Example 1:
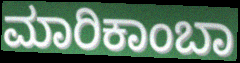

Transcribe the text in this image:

ಮಾರಿಕಾಂಬಾ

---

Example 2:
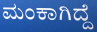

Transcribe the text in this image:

ಮಂಕಾಗಿದ್ದೆ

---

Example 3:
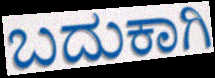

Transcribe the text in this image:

ಬದುಕಾಗಿ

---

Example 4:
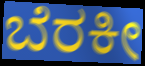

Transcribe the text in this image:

ಬೆರಕೀ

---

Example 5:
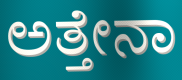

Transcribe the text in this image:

ಅತ್ತೇನಾ